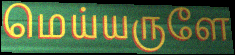
மெய்யருளே